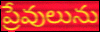
ప్రేవులును